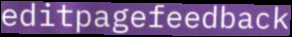
editpagefeedback